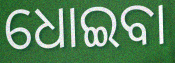
ଧୋଇବା